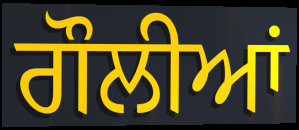
ਗੌਲੀਆਂ